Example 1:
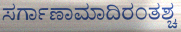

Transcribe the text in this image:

ಸರ್ಗಾಣಾಮಾದಿರಂತಶ್ಚ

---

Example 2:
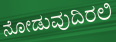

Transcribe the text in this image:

ನೋಡುವುದಿರಲಿ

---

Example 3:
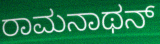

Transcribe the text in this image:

ರಾಮನಾಥನ್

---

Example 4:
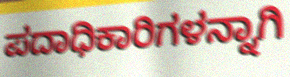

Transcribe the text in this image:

ಪದಾಧಿಕಾರಿಗಳನ್ನಾಗಿ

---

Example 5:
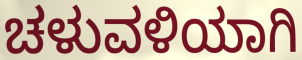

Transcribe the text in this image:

ಚಳುವಳಿಯಾಗಿ